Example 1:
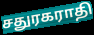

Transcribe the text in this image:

சதுரகராதி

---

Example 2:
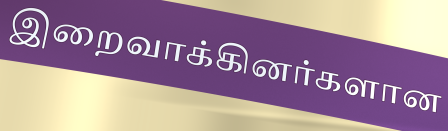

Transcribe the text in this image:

இறைவாக்கினர்களான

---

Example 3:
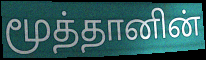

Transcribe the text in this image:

மூத்தானின்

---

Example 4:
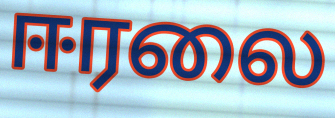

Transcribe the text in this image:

ஈரலை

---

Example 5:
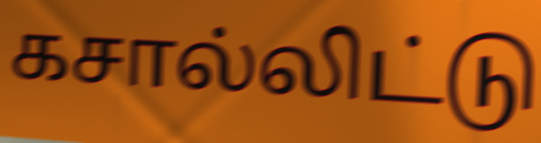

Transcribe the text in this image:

கசால்லிட்டு